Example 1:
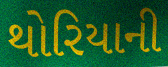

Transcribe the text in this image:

થોરિયાની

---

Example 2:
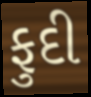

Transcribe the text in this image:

ફુદી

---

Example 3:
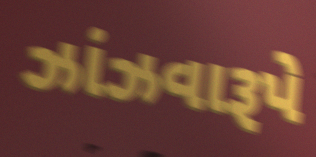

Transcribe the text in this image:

ઝાંઝવારૂપે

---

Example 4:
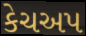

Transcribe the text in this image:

કેચઅપ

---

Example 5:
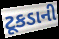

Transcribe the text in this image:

ટૂકડાની